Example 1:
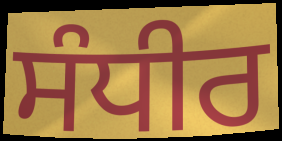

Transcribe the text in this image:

ਸੰਧੀਰ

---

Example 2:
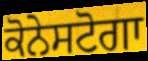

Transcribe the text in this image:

ਕੋਨੇਸਟੋਗਾ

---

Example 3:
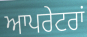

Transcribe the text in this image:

ਆਪਰੇਟਰਾਂ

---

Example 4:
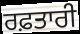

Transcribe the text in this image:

ਰਫ਼ਤਾਰੀ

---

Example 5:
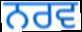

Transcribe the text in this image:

ਨਰਵ